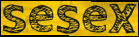
sesex